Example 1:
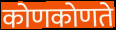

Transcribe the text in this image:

कोणकोणते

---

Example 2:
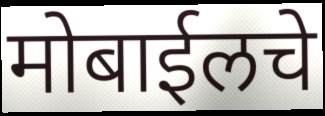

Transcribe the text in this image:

मोबाईलचे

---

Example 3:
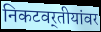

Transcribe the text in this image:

निकटवर्तीयांवर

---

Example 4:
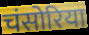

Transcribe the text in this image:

चंसोरिया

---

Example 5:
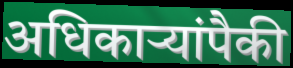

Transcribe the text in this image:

अधिकार्‍यांपैकी